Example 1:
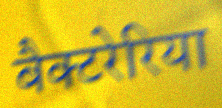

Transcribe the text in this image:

बैक्टरेरिया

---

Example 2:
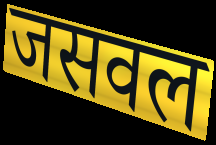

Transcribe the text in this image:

जसवल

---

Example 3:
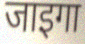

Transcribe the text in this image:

जाइगा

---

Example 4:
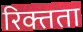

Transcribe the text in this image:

रिक्तता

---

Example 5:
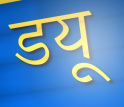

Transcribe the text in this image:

डयू